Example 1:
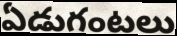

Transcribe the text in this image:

ఏడుగంటలు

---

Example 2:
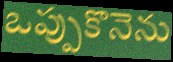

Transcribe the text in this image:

ఒప్పుకొనెను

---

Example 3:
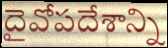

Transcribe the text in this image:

దైవోపదేశాన్ని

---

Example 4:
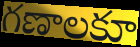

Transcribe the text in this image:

గణాలకూ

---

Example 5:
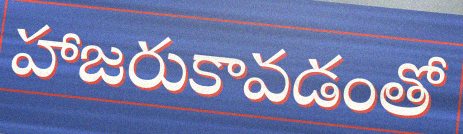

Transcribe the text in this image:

హాజరుకావడంతో